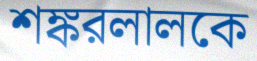
শঙ্করলালকে